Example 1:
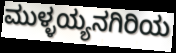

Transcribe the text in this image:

ಮುಳ್ಳಯ್ಯನಗಿರಿಯ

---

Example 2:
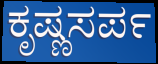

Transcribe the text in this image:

ಕೃಷ್ಣಸರ್ಪ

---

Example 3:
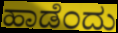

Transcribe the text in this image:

ಹಾಡೆಂದು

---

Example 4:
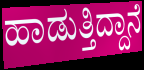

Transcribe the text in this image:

ಹಾಡುತ್ತಿದ್ದಾನೆ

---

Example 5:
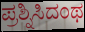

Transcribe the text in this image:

ಪ್ರಶ್ನಿಸಿದಂಥ